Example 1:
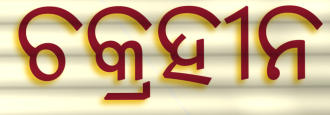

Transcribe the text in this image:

ଚକ୍ରହୀନ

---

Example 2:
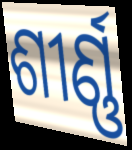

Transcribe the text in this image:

ଶୀର୍ଣ୍ଣ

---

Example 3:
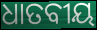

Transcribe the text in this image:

ଧାତବୀୟ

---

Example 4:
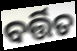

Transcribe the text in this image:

ବର୍ତ୍ତିତ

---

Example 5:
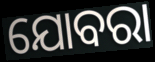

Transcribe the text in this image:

ଯୋବରା